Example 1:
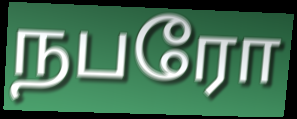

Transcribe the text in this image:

நபரோ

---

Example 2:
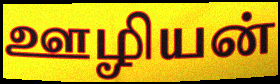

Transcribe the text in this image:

ஊழியன்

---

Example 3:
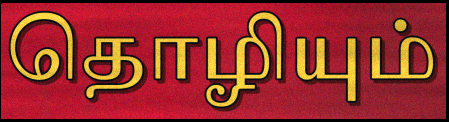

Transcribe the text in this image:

தொழியும்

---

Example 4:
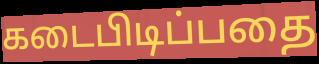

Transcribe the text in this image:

கடைபிடிப்பதை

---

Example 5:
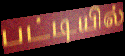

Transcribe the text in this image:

பட்டியில்